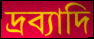
দ্রব্যাদি